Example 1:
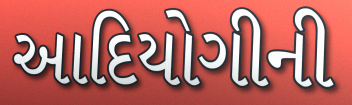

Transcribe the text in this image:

આદિયોગીની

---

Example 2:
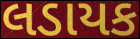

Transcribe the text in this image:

લડાયક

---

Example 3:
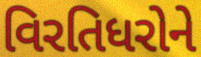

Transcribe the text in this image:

વિરતિધરોને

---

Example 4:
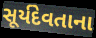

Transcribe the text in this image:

સૂર્યદેવતાના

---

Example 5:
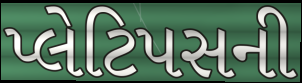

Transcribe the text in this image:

પ્લેટિપસની